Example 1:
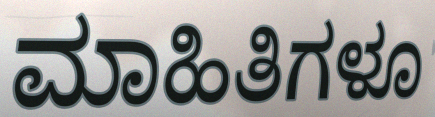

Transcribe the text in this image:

ಮಾಹಿತಿಗಳೂ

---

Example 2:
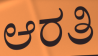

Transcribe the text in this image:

ಆರತಿ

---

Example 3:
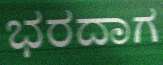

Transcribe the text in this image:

ಭರದಾಗ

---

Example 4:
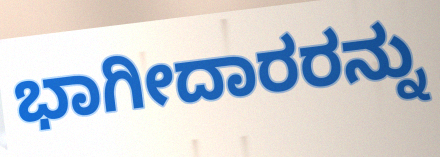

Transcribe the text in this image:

ಭಾಗೀದಾರರನ್ನು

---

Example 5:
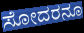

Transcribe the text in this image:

ಸೋದರನೂ